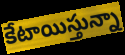
కేటాయిస్తున్నా